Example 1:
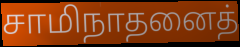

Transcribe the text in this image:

சாமிநாதனைத்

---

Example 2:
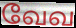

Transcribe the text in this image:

வேவ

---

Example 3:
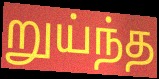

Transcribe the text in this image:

றுய்ந்த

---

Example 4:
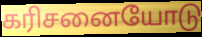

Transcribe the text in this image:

கரிசனையோடு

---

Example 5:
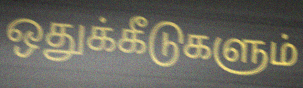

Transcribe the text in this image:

ஒதுக்கீடுகளும்